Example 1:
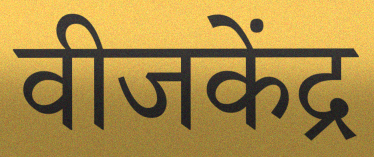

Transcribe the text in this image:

वीजकेंद्र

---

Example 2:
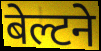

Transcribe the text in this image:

बेल्टने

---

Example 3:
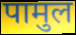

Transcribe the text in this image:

पामुल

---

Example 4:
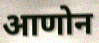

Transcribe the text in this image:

आणोन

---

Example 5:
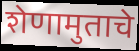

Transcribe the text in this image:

शेणामुताचे